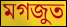
মগজুত